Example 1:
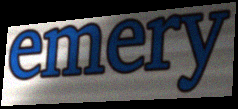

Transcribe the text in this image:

emery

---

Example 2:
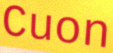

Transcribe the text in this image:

Cuon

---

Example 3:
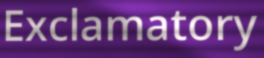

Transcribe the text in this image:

Exclamatory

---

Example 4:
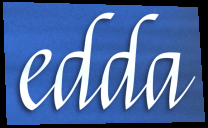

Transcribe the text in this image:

edda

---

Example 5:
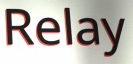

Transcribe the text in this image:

Relay